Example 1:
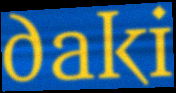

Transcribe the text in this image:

daki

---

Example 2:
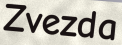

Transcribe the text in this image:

Zvezda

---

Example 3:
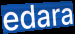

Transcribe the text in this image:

edara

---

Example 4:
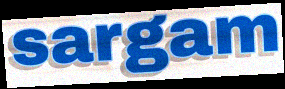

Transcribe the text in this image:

sargam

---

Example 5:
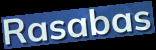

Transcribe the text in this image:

Rasabas